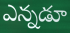
ఎన్నడూ